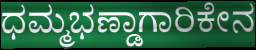
ಧಮ್ಮಭಣ್ಡಾಗಾರಿಕೇನ